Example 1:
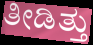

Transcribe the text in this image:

ತೀಡಿತ್ತು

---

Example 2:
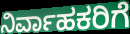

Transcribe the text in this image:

ನಿರ್ವಾಹಕರಿಗೆ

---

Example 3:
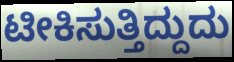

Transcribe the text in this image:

ಟೀಕಿಸುತ್ತಿದ್ದುದು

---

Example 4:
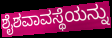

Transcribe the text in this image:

ಶೈಶವಾವಸ್ಥೆಯನ್ನು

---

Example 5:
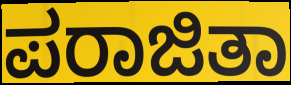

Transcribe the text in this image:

ಪರಾಜಿತಾ